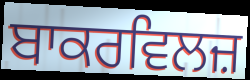
ਬਾਕਰਵਿਲਜ਼